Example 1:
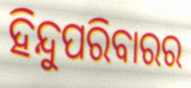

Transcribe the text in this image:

ହିନ୍ଦୁପରିବାରର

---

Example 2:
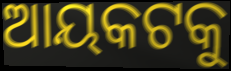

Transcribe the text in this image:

ଆୟକଟକୁ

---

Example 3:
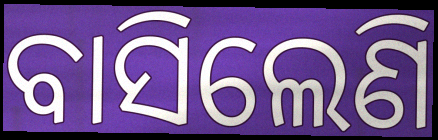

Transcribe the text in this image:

ବାସିଲେଣି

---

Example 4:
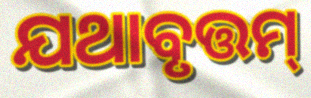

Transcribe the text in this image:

ଯଥାବୃତ୍ତମ୍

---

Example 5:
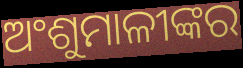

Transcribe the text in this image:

ଅଂଶୁମାଳୀଙ୍କର